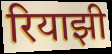
रियाझी